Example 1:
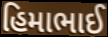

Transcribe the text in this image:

હિમાભાઈ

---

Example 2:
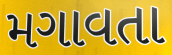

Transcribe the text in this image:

મગાવતા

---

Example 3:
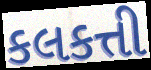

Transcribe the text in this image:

કલકત્તી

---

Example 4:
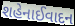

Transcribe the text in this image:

શહેનાઈવાદન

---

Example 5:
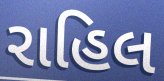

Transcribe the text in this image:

રાહિલ